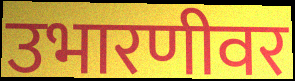
उभारणीवर